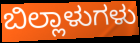
ಬಿಲ್ಲಾಳುಗಳು